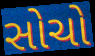
સોચો